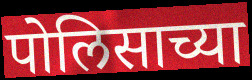
पोलिसाच्या